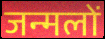
जन्मलों